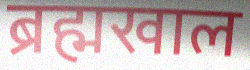
ब्रह्मखाल